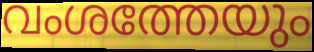
വംശത്തേയും